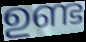
ഉണ്ട